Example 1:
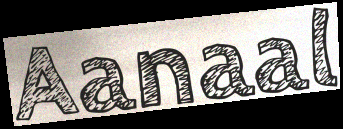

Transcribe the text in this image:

Aanaal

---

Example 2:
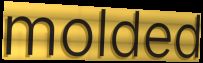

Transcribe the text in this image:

molded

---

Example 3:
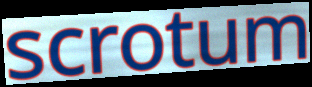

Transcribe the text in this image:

scrotum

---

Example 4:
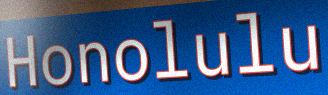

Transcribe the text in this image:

Honolulu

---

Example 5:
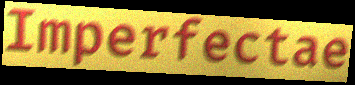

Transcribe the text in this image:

Imperfectae